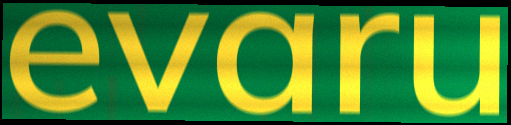
evaru